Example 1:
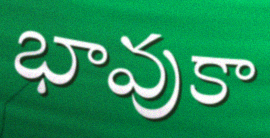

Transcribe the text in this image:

భావుకా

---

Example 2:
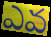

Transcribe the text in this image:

ఎవ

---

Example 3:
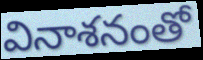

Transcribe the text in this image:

వినాశనంతో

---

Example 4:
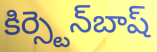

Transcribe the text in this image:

కిర్స్టెన్‌బాష్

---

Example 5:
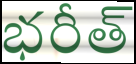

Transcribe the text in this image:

భరీత్